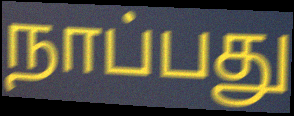
நாப்பது